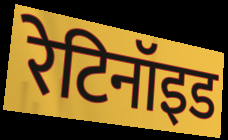
रेटिनॉइड